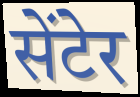
सेंटेर